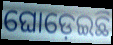
ଘୋଡ଼େଇଛି